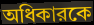
অধিকারকে